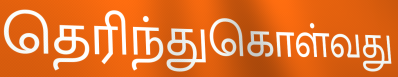
தெரிந்துகொள்வது